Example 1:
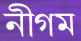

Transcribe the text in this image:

নীগম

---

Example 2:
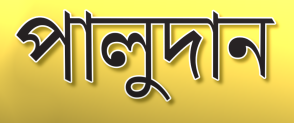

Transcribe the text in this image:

পালুদান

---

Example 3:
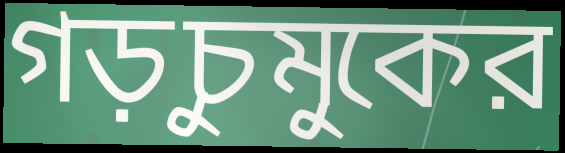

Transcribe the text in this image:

গড়চুমুকের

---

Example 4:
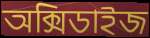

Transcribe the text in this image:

অক্সিডাইজ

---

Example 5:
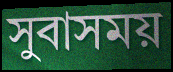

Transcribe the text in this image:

সুবাসময়